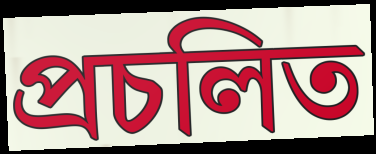
প্ৰচলিত